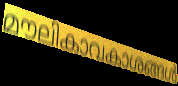
മൗലികാവകാശങ്ങൾ